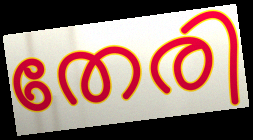
തേരി